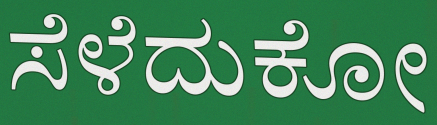
ಸೆಳೆದುಕೋ